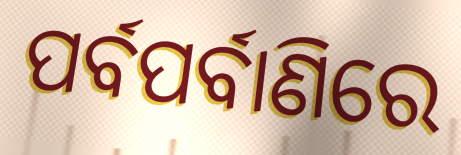
ପର୍ବପର୍ବାଣିରେ